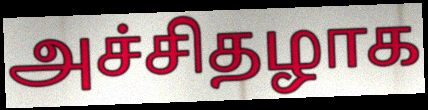
அச்சிதழாக